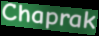
Chaprak